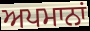
ਅਪਮਾਨਾਂ